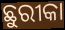
ଛୁରୀକା